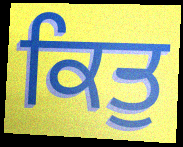
ਕਿਤੁ